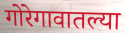
गोरेगावातल्या